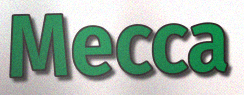
Mecca